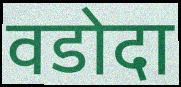
वडोदा